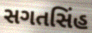
સગતસિંહ